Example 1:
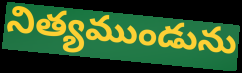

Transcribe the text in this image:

నిత్యముండును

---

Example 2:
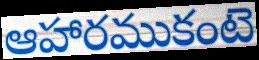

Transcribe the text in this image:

ఆహారముకంటె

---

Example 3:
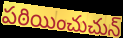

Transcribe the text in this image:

పఠియించుచున్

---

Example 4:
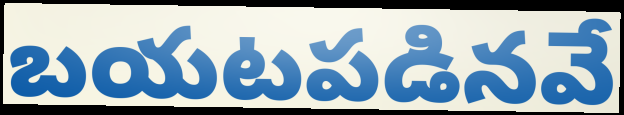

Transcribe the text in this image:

బయటపడినవే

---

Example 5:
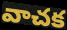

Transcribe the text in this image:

వాచక